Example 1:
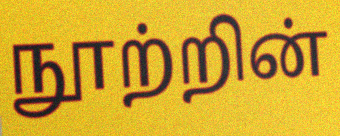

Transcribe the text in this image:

நூற்றின்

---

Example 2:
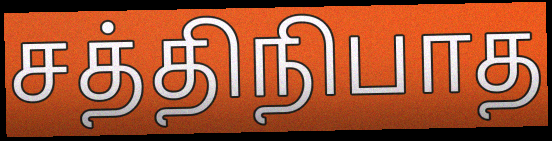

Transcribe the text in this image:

சத்திநிபாத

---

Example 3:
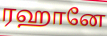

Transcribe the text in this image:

ரஹானே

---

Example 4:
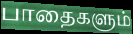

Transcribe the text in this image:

பாதைகளும்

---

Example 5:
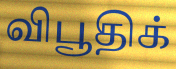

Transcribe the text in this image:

விபூதிக்